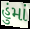
હુંમાં